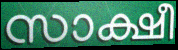
സാക്ഷീ